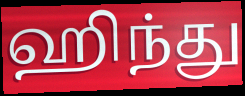
ஹிந்து